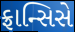
ફ્રાન્સિસે